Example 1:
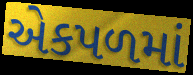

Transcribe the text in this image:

એકપળમાં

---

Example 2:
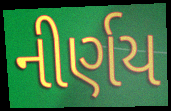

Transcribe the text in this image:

નીર્ણય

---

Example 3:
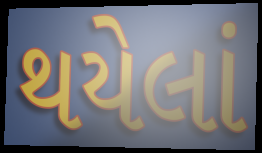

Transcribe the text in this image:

થયેલાં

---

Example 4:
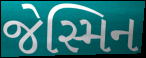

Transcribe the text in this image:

જેસ્મિન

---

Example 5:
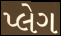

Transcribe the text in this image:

પ્લેગ